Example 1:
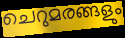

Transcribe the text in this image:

ചെറുമരങ്ങളും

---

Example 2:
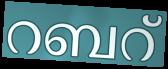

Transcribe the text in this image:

റബറ്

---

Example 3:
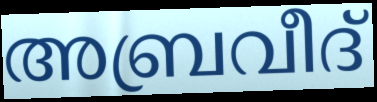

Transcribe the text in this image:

അബ്രവീദ്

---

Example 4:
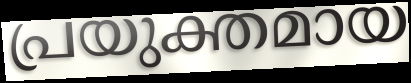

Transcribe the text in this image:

പ്രയുക്തമായ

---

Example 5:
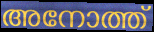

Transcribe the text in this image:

അനോത്ത്